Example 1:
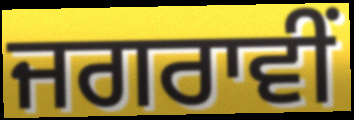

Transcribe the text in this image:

ਜਗਰਾਵੀਂ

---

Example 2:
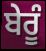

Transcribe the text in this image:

ਬੇਰੂੰ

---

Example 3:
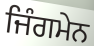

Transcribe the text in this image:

ਜਿੰਗਮੇਨ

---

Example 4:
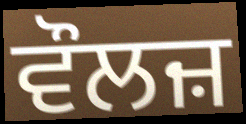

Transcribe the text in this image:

ਵੌਲਜ਼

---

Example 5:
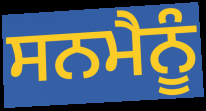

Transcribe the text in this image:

ਸਨਮੈਨੂੰ